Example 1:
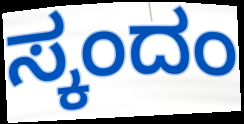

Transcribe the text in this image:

ಸ್ಕಂದಂ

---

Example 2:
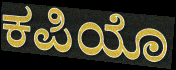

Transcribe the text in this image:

ಕಪಿಯೊ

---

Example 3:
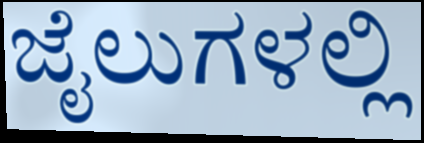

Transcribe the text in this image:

ಜೈಲುಗಳಲ್ಲಿ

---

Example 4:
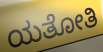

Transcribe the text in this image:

ಯತೋತಿ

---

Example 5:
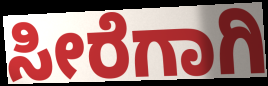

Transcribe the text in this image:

ಸೀರೆಗಾಗಿ